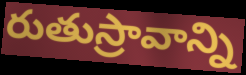
రుతుస్రావాన్ని